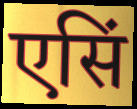
एसिं